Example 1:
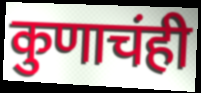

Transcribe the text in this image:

कुणाचंही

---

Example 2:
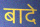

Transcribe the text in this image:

बादे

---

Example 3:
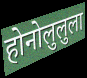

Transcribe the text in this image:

होनोलुलुला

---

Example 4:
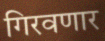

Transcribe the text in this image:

गिरवणार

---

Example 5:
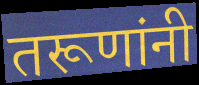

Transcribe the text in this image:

तरूणांनी